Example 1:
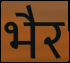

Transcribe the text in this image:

भैर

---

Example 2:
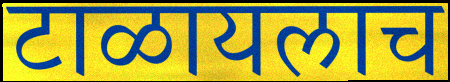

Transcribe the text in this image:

टाळायलाच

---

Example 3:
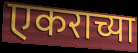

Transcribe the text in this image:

एकराच्या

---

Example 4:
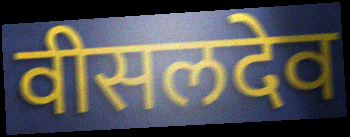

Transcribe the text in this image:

वीसलदेव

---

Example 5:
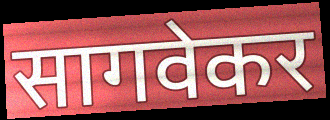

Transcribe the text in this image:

सागवेकर